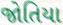
જોતિયા